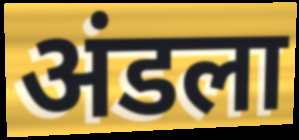
अंडला